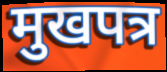
मुखपत्र